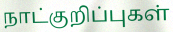
நாட்குறிப்புகள்